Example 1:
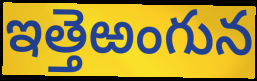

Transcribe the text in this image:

ఇత్తెఱంగున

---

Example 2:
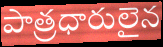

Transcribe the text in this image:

పాత్రధారులైన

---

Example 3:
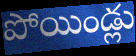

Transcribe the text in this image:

పోయిండ్లు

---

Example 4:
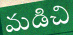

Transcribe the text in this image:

మడిచి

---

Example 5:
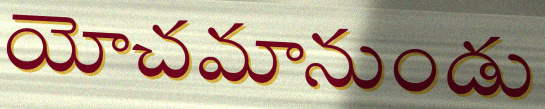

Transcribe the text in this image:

యోచమానుండు